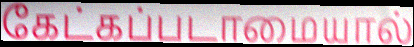
கேட்கப்படாமையால்